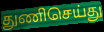
துணிசெய்து